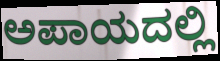
ಅಪಾಯದಲ್ಲಿ